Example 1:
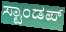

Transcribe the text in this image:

ಸ್ಟಾಂಡಪ್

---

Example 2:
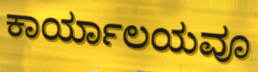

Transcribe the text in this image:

ಕಾರ್ಯಾಲಯವೂ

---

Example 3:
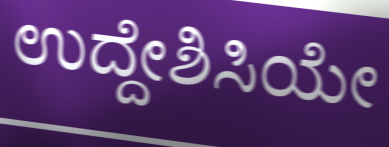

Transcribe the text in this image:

ಉದ್ದೇಶಿಸಿಯೇ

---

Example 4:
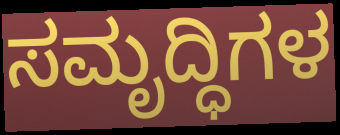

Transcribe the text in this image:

ಸಮೃದ್ಧಿಗಳ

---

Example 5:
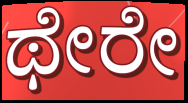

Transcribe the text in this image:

ಥೇರೇ